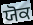
ਯੋਕ